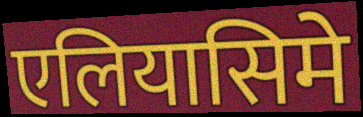
एलियासिमे